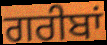
ਗਰੀਬਾਂ